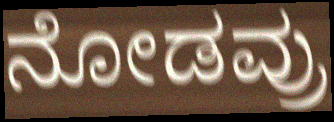
ನೋಡವ್ರು